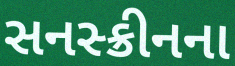
સનસ્ક્રીનના